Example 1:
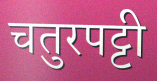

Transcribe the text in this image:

चतुरपट्टी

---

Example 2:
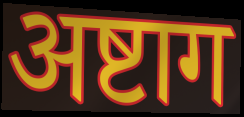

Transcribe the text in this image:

अष्टाग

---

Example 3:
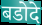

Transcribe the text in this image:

बडोदे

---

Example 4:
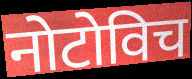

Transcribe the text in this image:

नोटोविच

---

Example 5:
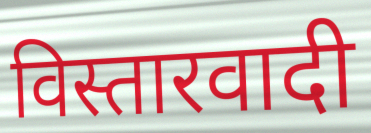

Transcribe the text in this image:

विस्तारवादी